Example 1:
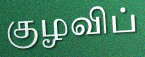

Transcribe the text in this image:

குழவிப்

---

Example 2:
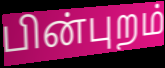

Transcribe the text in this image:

பின்புறம்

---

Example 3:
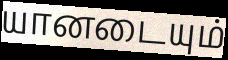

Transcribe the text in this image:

யானடையும்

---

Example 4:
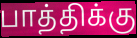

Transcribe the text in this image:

பாத்திக்கு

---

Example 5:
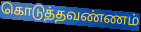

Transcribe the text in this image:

கொடுத்தவண்ணம்